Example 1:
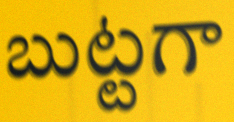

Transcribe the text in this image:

బుట్టగా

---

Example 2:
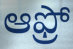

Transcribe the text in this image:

ఆఫ్రో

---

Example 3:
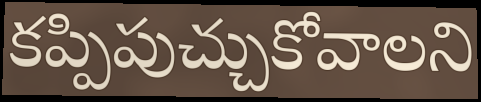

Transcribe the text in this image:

కప్పిపుచ్చుకోవాలని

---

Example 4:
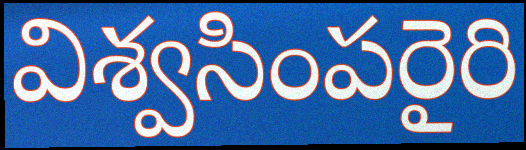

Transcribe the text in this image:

విశ్వసింపరైరి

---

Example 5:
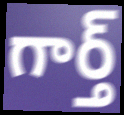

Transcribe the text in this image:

గార్త్